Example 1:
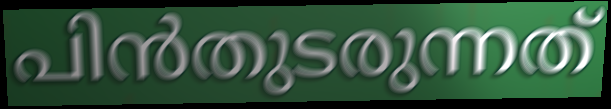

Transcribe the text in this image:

പിൻതുടരുന്നത്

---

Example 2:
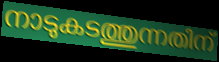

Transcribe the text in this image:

നാടുകടത്തുന്നതിന്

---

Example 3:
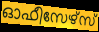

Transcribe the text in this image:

ഓഫീസേഴ്സ്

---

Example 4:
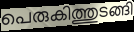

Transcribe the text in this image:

പെരുകിത്തുടങ്ങി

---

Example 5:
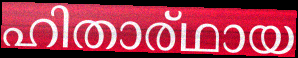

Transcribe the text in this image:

ഹിതാര്ഥായ